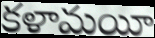
కళామయీ